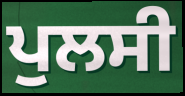
ਪੁਲਸੀ